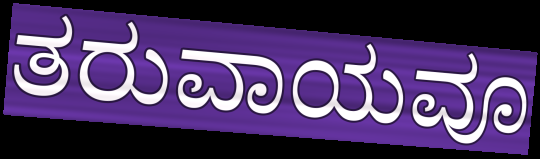
ತರುವಾಯವೂ